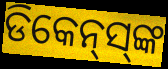
ଡିକେନ୍‌ସ୍‌ଙ୍କ